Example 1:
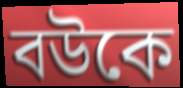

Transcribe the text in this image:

বউকে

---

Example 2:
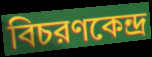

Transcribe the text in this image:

বিচরণকেন্দ্র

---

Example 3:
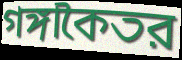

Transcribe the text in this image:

গঙ্গাকৈতর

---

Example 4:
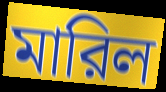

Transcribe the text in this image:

মারিল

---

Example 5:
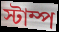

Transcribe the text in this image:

স্টাম্প